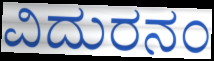
ವಿದುರನಂ